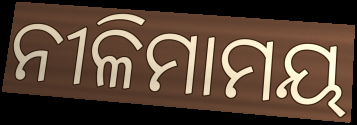
ନୀଳିମାମୟ